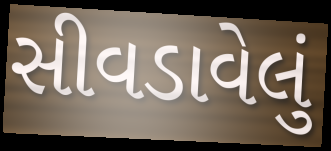
સીવડાવેલું